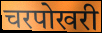
चरपोखरी